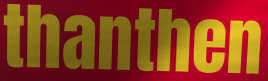
thanthen